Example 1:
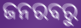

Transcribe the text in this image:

ଜନରବରୁ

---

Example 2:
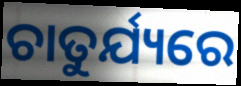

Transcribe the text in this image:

ଚାତୁର୍ଯ୍ୟରେ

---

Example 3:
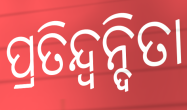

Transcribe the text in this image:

ପ୍ରତିନ୍ଦ୍ବନ୍ଦିତା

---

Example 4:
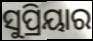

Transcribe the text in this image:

ସୁପ୍ରିୟାର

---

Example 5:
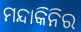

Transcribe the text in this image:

ମନ୍ଦାକିନିର